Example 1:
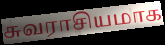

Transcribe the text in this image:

சுவராசியமாக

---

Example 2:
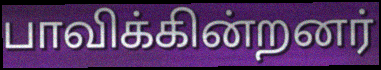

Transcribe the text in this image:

பாவிக்கின்றனர்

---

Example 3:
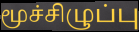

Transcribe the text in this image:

மூச்சிழுப்பு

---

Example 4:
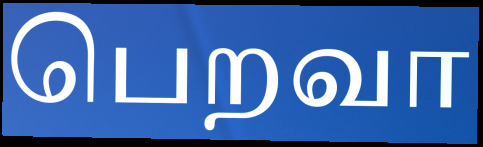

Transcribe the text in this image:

பெறவா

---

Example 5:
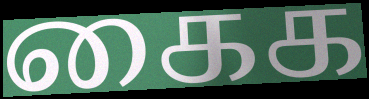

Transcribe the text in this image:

கைக